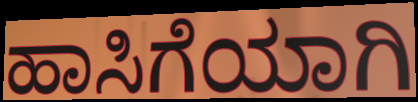
ಹಾಸಿಗೆಯಾಗಿ